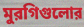
মুরগিগুলোর